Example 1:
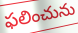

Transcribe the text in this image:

ఫలించును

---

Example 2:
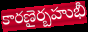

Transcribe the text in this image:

కారణైర్బహుభీ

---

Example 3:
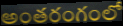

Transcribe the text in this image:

అంతరంగంలో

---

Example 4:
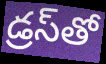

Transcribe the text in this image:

డ్రస్‌తో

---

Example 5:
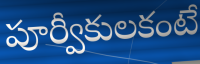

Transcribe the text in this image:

పూర్వీకులకంటే